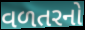
વળતરનો